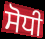
ਸੋਧੀ